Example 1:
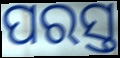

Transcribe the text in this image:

ପରସ୍ତ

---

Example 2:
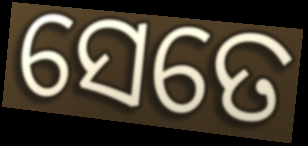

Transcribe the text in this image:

ସେତେ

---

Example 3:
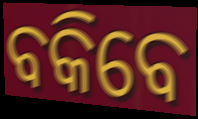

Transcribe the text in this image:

ବକିବେ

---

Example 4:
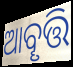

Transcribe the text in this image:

ଆବୄତ୍ତି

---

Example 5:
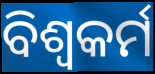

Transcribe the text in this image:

ବିଶ୍ୱକର୍ମ